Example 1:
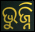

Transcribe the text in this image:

ଭୁଜ୍ନି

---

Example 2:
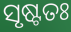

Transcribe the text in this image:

ସୃଷ୍ଟତଃ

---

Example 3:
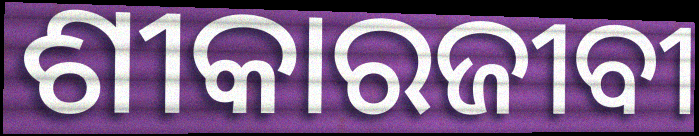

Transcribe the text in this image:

ଶୀକାରଜୀବୀ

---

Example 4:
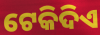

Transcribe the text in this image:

ଟେକିଦିଏ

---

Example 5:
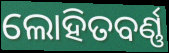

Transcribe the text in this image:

ଲୋହିତବର୍ଣ୍ଣ